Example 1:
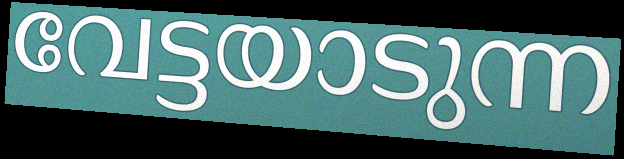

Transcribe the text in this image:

വേട്ടയാടുന്ന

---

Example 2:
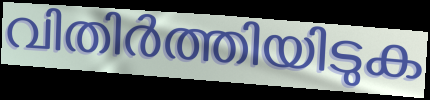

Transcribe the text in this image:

വിതിർത്തിയിടുക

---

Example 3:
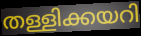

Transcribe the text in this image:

തള്ളിക്കയറി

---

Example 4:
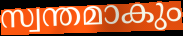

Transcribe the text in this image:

സ്വന്തമാകും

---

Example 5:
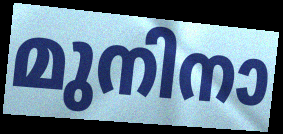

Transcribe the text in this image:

മുനിനാ